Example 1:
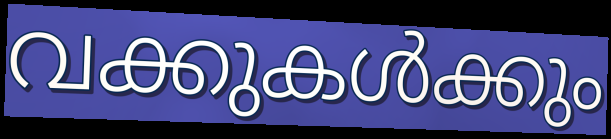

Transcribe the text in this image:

വക്കുകൾക്കും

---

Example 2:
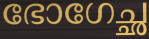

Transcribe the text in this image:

ഭോഗേച്ഛ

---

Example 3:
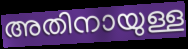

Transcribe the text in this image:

അതിനായുള്ള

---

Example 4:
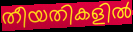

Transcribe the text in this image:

തീയതികളിൽ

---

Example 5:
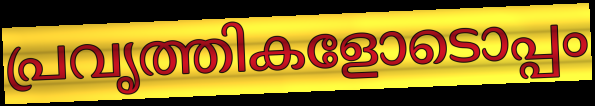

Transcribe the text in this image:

പ്രവൃത്തികളോടൊപ്പം